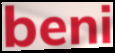
beni